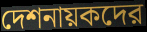
দেশনায়কদের